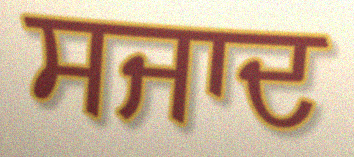
ਸਜਾਦ